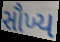
સૌખ્ય